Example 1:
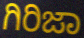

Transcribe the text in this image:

ಗಿರಿಜಾ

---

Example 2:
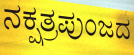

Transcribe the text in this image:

ನಕ್ಷತ್ರಪುಂಜದ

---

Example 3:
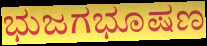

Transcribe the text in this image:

ಭುಜಗಭೂಷಣ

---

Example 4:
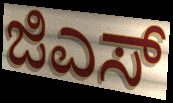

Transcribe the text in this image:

ಜಿಎಸ್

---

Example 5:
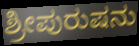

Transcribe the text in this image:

ಶ್ರೀಪುರುಷನು